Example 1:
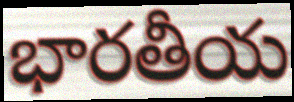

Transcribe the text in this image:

భారతీయ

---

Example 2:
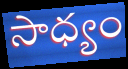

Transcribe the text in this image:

సాధ్యం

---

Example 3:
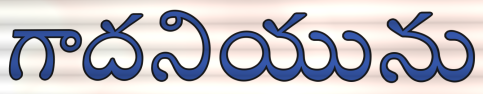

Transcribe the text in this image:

గాదనియును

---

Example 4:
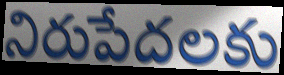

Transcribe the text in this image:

నిరుపేదలకు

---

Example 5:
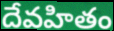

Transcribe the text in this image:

దేవహితం